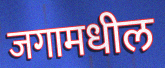
जगामधील